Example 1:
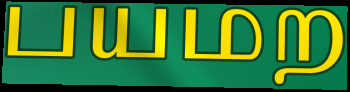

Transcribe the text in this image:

பயமற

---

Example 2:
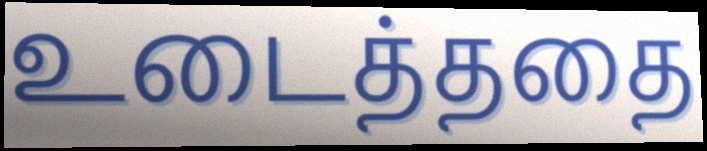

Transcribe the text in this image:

உடைத்ததை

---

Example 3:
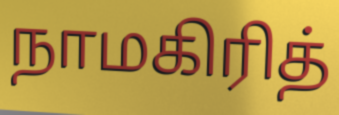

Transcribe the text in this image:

நாமகிரித்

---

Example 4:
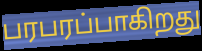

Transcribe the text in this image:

பரபரப்பாகிறது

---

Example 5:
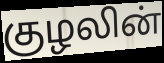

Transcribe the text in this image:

குழலின்